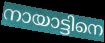
നായാട്ടിനെ